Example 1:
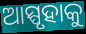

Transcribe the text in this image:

ଆସ୍ପୃହାକୁ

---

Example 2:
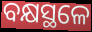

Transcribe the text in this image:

ବକ୍ଷସ୍ଥଳେ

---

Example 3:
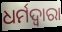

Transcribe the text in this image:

ଧର୍ମଦ୍ଵାରା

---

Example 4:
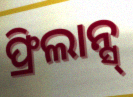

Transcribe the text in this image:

ଫ୍ରିଲାନ୍ସ୍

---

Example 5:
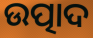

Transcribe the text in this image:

ଉତ୍ପାଦ